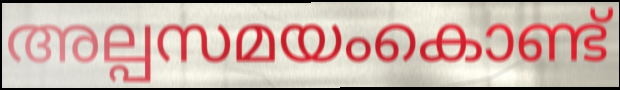
അല്പസമയംകൊണ്ട്